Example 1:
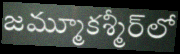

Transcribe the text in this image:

జమ్మూకశ్మీర్‌లో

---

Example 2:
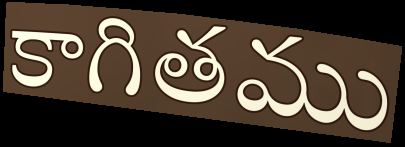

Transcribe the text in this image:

కాగితము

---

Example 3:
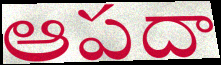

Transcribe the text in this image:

ఆపదా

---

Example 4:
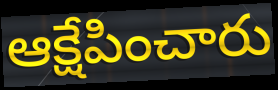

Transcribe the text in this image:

ఆక్షేపించారు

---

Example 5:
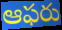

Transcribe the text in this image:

ఆఫరు